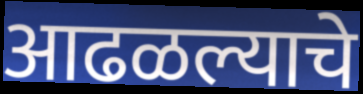
आढळल्याचे